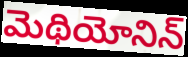
మెథియోనిన్